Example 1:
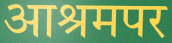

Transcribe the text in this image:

आश्रमपर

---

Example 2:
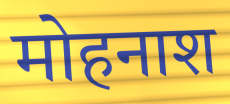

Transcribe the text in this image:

मोहनाश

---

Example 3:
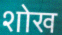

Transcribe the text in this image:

शोख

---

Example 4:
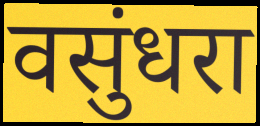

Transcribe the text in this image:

वसुंधरा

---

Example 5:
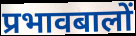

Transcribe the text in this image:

प्रभावबालों